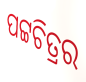
ପଟ୍ଟଚିତ୍ରର